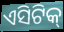
ଏସିଟିକ୍